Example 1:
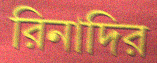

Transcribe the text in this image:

রিনাদির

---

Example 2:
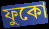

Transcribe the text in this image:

ফুকো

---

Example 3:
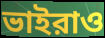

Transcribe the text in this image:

ভাইরাও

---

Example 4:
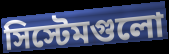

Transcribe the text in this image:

সিস্টেমগুলো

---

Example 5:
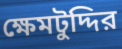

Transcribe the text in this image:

ক্ষেমটুদ্দির